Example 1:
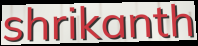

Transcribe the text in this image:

shrikanth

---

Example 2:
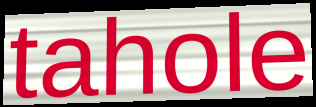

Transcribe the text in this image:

tahole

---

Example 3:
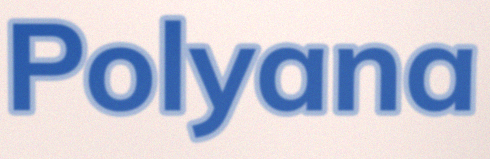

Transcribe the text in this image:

Polyana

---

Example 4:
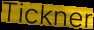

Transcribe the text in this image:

Tickner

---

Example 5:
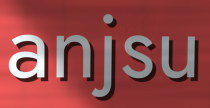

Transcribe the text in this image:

anjsu